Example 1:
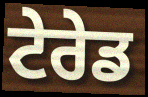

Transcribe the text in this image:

ਟੇਰੇਡ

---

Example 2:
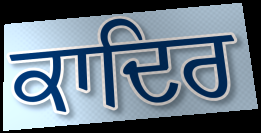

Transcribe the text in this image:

ਕਾਦਿਰ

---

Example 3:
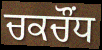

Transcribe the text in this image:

ਚਕਚੌਂਧ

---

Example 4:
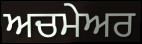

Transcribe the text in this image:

ਅਚਮੇਅਰ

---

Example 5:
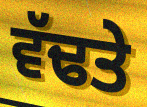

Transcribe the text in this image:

ਵੱਢਤੇ